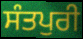
ਸੰਤਪੁਰੀ